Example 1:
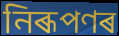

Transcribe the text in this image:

নিৰূপণৰ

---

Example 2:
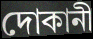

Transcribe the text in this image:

দোকানী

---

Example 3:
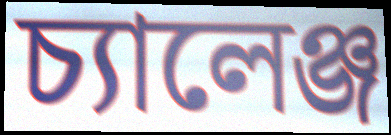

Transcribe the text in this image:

চ্যালেঞ্জ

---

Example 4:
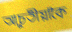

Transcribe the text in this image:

আচুতীয়াকৈ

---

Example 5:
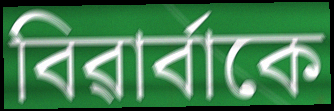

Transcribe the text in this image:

বিৱাৰ্বাকে